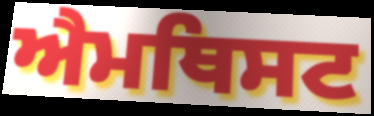
ਐਮਥਿਸਟ